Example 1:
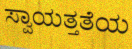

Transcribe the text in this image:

ಸ್ವಾಯತ್ತತೆಯ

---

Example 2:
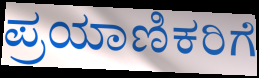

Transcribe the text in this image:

ಪ್ರಯಾಣಿಕರಿಗೆ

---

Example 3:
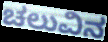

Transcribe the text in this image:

ಚಲುವಿನ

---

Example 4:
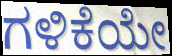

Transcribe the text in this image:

ಗಳಿಕೆಯೇ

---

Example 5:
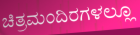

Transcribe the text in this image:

ಚಿತ್ರಮಂದಿರಗಳಲ್ಲೂ